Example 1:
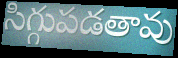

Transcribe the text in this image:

సిగ్గుపడతావు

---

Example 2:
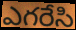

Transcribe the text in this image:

ఎగరేసి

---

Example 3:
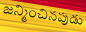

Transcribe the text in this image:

జన్మించినపుడు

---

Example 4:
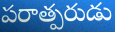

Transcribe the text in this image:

పరాత్పరుడు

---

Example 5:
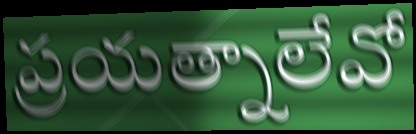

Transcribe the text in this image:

ప్రయత్నాలేవో